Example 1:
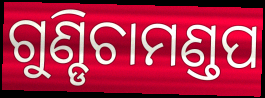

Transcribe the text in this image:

ଗୁଣ୍ଡିଚାମଣ୍ଡପ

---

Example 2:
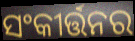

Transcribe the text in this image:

ସଂକୀର୍ତ୍ତନର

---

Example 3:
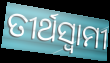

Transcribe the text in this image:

ତୀର୍ଥସ୍ୱାମୀ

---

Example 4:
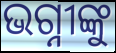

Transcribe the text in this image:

ଭଗ୍ନୀଙ୍କୁ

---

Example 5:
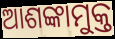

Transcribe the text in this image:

ଆଶଙ୍କାମୁକ୍ତ